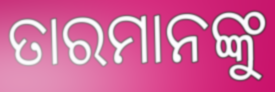
ତାରମାନଙ୍କୁ